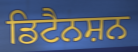
ਡਿਟੈਨਸ਼ਨ